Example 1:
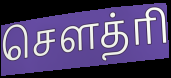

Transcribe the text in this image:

சௌத்ரி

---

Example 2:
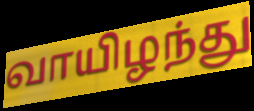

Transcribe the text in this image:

வாயிழந்து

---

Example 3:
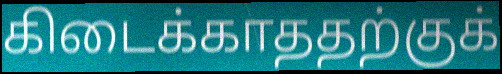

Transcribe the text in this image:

கிடைக்காததற்குக்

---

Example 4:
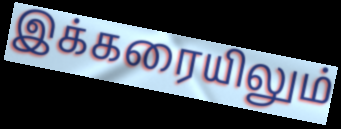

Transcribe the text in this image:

இக்கரையிலும்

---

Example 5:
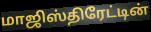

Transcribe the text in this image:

மாஜிஸ்திரேட்டின்